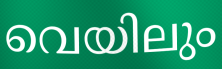
വെയിലും